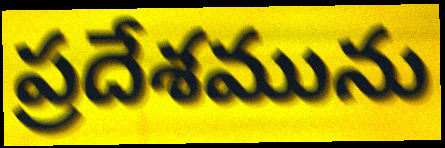
ప్రదేశమును